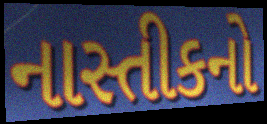
નાસ્તીકનો